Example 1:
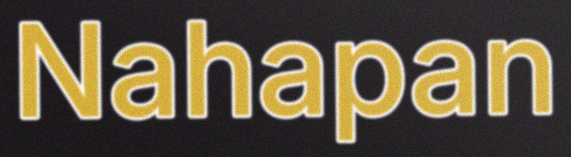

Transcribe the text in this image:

Nahapan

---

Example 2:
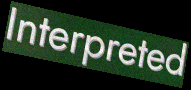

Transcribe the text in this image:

Interpreted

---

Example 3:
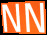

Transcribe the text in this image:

NN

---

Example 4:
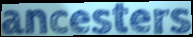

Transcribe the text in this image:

ancesters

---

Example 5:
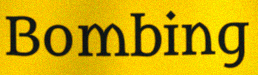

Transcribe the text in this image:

Bombing